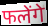
फलेंगे